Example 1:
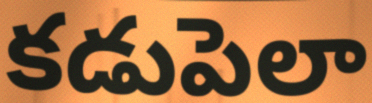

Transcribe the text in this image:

కడుపెలా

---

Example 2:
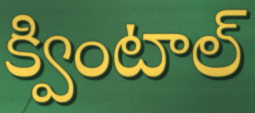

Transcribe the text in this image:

క్వింటాల్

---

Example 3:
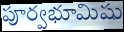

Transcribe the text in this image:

పూర్వభూమిషు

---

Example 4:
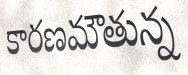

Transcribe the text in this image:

కారణమౌతున్న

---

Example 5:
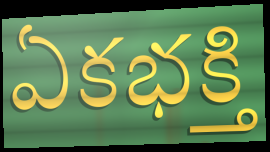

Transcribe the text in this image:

ఏకభక్తి